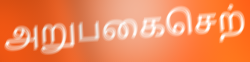
அறுபகைசெற்